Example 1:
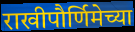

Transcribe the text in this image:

राखीपौर्णिमेच्या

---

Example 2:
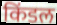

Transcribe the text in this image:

किंडल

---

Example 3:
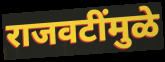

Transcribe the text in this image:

राजवटींमुळे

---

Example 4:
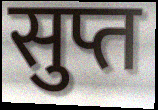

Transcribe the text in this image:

सुप्त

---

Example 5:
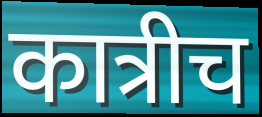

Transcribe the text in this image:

कात्रीच